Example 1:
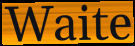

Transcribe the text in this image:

Waite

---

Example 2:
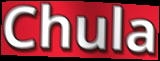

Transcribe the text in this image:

Chula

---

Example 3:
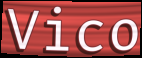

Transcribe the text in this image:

Vico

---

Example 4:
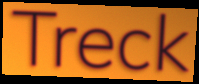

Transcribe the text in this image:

Treck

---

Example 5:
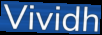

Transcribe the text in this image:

Vividh